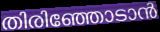
തിരിഞ്ഞോടാൻ